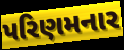
પરિણમનાર